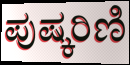
ಪುಷ್ಕರಿಣಿ